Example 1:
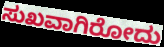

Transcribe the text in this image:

ಸುಖವಾಗಿರೋದು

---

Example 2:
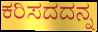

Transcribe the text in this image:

ಕರಿಸದದನ್ನ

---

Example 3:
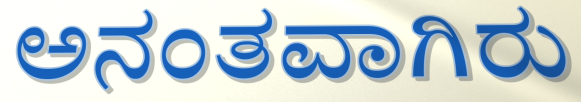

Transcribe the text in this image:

ಅನಂತವಾಗಿರು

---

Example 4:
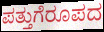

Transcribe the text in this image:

ಪತ್ತುಗೆರೂಪದ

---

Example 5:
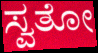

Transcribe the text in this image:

ಸ್ವತೋ